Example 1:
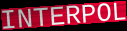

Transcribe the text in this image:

INTERPOL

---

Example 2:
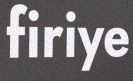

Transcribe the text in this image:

firiye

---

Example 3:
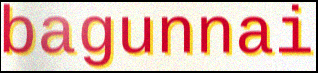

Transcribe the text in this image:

bagunnai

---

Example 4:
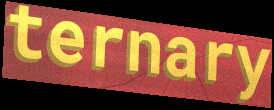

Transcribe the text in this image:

ternary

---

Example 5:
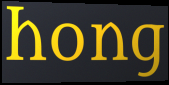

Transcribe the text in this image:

hong